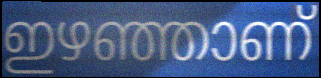
ഇഴഞ്ഞാണ്